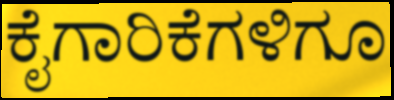
ಕೈಗಾರಿಕೆಗಳಿಗೂ